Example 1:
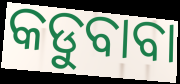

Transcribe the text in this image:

କଡୁବାବା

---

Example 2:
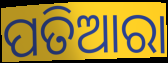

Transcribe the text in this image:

ପତିଆରା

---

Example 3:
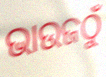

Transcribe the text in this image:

ଭାଉଜଠୁଁ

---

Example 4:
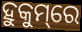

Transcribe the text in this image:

ହୁକୁମ୍‌ରେ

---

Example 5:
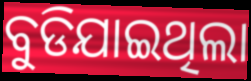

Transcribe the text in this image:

ବୁଡିଯାଇଥିଲା